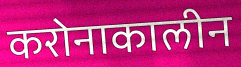
करोनाकालीन